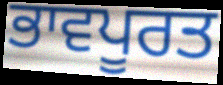
ਭਾਵਪੂਰਤ